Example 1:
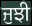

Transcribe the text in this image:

ਜੁਝੀ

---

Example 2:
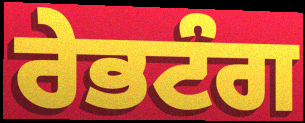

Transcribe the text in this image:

ਰੇਭਟੰਗ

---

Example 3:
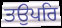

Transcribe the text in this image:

ਤਉਪਰਿ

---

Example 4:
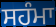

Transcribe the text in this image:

ਸਹੰਮਾ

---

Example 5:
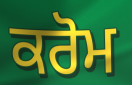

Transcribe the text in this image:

ਕਰੋਮ